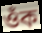
ওঁক